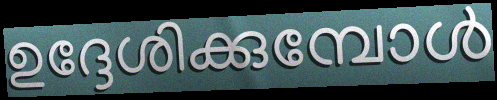
ഉദ്ദേശിക്കുമ്പോൾ